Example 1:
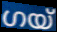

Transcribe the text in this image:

ഗയ്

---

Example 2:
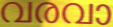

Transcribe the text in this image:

വരവാ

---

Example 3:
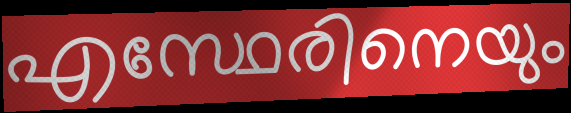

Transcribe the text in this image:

എസ്ഥേരിനെയും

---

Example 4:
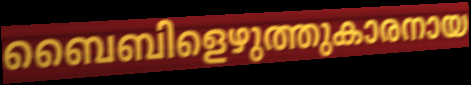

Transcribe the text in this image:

ബൈബിളെഴുത്തുകാരനായ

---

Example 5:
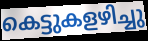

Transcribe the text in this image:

കെട്ടുകളഴിച്ചു